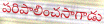
పరిపాలించసాగాడు